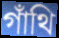
গাঁথি